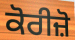
ਕੋਰੀਜ਼ੋ